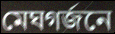
মেঘগর্জনে